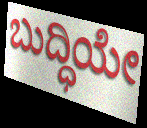
ಬುದ್ಧಿಯೇ